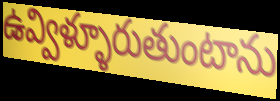
ఉవ్విళ్ళూరుతుంటాను